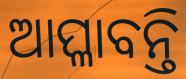
ଆପ୍ଳାବନ୍ତି